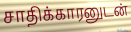
சாதிக்காரனுடன்